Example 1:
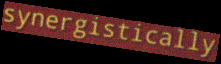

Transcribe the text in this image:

synergistically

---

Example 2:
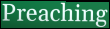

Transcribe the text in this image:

Preaching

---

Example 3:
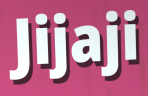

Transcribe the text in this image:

Jijaji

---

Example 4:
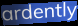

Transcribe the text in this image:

ardently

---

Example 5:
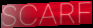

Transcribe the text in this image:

SCARF